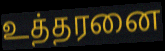
உத்தரனை